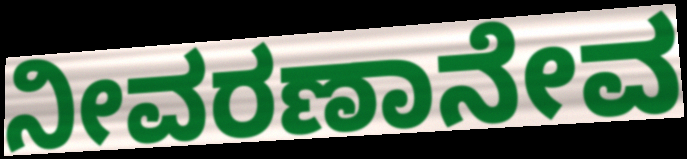
ನೀವರಣಾನೇವ